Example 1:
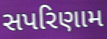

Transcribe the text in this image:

સપરિણામ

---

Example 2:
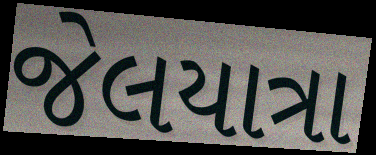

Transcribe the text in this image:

જેલયાત્રા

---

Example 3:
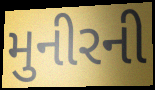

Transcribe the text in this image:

મુનીરની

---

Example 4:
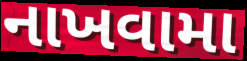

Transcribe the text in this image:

નાખવામા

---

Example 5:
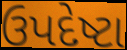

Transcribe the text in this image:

ઉપદેષ્ટા